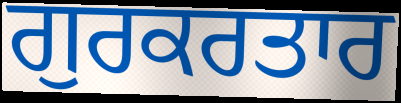
ਗੁਰਕਰਤਾਰ